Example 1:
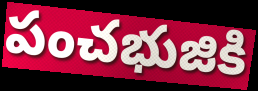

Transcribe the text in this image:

పంచభుజికి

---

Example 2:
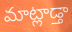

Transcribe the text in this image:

మాట్లాడ్తా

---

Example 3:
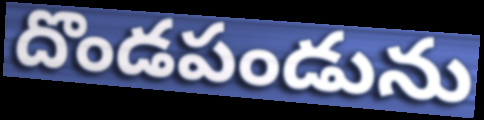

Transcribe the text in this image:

దొండపండును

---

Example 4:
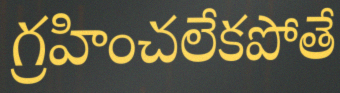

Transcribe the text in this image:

గ్రహించలేకపోతే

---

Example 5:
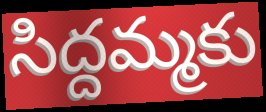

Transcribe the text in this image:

సిద్దమ్మకు